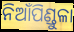
ନିଆଁପିଣ୍ଡୁଳା